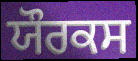
ਯੌਰਕਸ